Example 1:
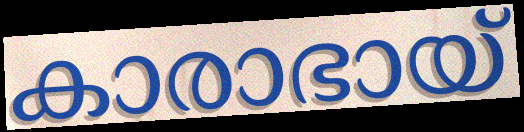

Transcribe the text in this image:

കാരാഭായ്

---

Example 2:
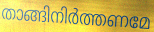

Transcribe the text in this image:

താങ്ങിനിർത്തണമേ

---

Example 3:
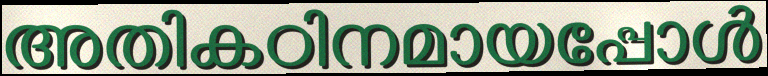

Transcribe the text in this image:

അതികഠിനമായപ്പോൾ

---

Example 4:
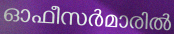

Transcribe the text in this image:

ഓഫീസർമാരിൽ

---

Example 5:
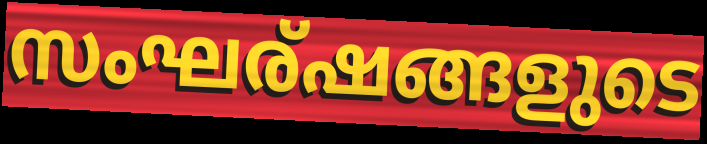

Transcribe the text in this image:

സംഘര്ഷങ്ങളുടെ